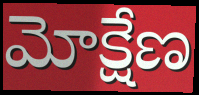
మోక్షేణ